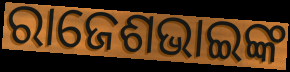
ରାଜେଶଭାଇଙ୍କ